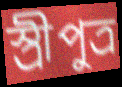
স্ত্রীপুত্র